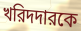
খরিদদারকে